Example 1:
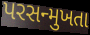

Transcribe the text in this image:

પરસન્મુખતા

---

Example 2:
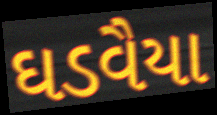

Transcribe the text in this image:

ઘડવૈયા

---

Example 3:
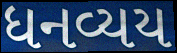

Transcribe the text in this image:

ધનવ્યય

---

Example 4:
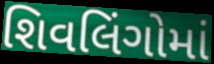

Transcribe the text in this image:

શિવલિંગોમાં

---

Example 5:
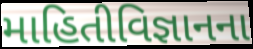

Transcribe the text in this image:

માહિતીવિજ્ઞાનના